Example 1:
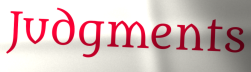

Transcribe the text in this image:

Judgments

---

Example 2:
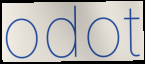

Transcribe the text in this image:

odot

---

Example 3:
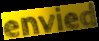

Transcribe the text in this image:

envied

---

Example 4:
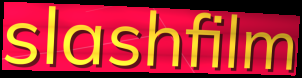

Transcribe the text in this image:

slashfilm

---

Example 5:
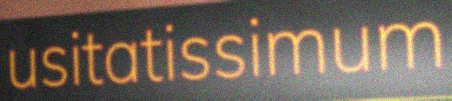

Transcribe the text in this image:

usitatissimum